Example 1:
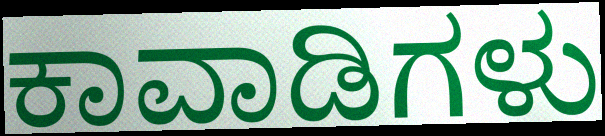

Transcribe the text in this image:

ಕಾವಾಡಿಗಳು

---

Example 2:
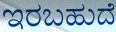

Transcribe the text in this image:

ಇರಬಹುದೆ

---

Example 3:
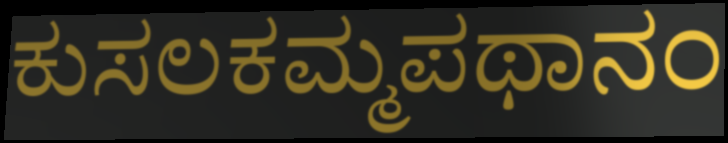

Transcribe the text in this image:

ಕುಸಲಕಮ್ಮಪಥಾನಂ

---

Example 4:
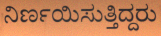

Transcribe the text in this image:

ನಿರ್ಣಯಿಸುತ್ತಿದ್ದರು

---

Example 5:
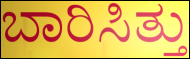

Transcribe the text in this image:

ಬಾರಿಸಿತ್ತು